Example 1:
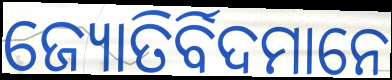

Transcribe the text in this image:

ଜ୍ୟୋତିର୍ବିଦମାନେ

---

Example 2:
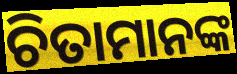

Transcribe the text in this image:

ଚିତାମାନଙ୍କ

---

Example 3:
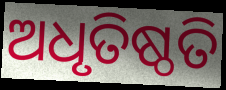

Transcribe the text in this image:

ଅଧୃତିଷ୍ଠତି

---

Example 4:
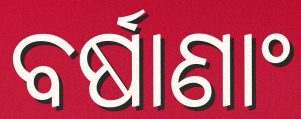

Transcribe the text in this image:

ବର୍ଷାଣାଂ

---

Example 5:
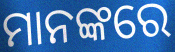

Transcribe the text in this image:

ମାନଙ୍କରେ